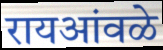
रायआंवळे